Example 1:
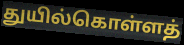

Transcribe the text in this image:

துயில்கொள்ளத்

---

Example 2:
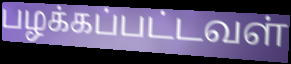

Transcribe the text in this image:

பழக்கப்பட்டவள்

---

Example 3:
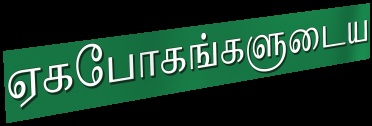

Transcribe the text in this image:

ஏகபோகங்களுடைய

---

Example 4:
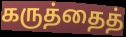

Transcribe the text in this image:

கருத்தைத்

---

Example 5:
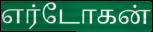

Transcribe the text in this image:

எர்டோகன்